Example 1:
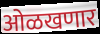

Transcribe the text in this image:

ओळखणार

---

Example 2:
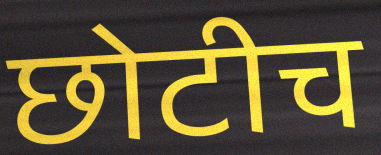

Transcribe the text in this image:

छोटीच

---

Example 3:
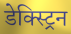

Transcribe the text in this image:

डेक्स्ट्रिन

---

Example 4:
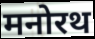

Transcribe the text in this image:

मनोरथ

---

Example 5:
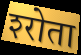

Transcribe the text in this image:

श्रोता